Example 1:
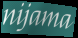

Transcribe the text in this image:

nijama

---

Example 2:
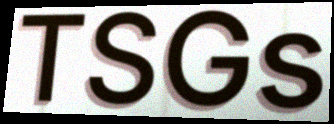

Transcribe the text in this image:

TSGs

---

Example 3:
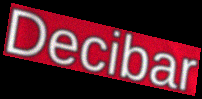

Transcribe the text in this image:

Decibar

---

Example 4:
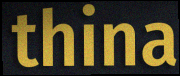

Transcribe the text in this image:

thina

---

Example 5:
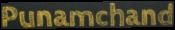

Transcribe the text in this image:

Punamchand